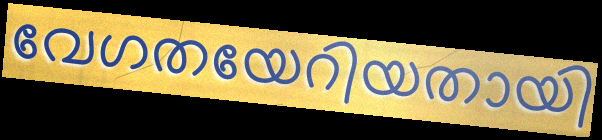
വേഗതയേറിയതായി